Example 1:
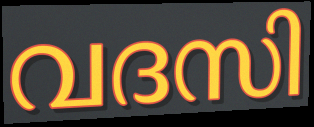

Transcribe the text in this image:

വദസി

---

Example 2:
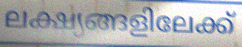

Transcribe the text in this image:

ലക്ഷ്യങ്ങളിലേക്ക്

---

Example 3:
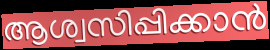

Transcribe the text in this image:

ആശ്വസിപ്പിക്കാൻ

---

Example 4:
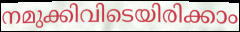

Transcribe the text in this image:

നമുക്കിവിടെയിരിക്കാം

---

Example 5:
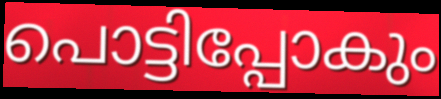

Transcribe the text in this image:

പൊട്ടിപ്പോകും